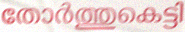
തോർത്തുകെട്ടി